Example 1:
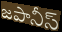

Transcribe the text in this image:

జపానీస్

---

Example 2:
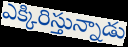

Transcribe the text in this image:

ఎక్కిరిస్తున్నాడు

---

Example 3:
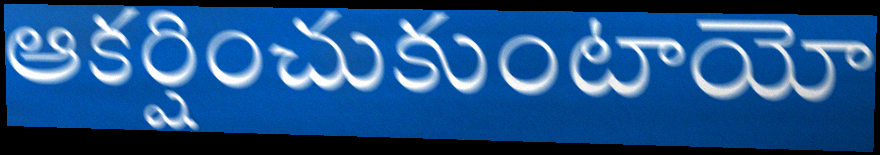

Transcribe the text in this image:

ఆకర్షించుకుంటాయో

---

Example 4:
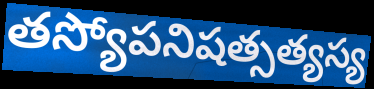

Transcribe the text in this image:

తస్యోపనిషత్సత్యస్య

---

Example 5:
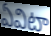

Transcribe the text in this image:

ఏవిటా